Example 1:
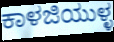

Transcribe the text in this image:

ಕಾಳಜಿಯುಳ್ಳ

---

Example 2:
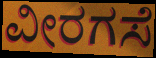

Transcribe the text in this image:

ವೀರಗಸೆ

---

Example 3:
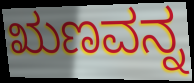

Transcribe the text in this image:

ಋಣವನ್ನ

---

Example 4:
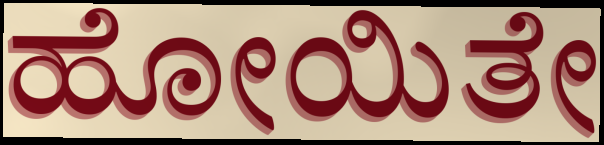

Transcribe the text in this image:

ಹೋಯಿತೇ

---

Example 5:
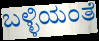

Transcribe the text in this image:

ಬಳ್ಳಿಯಂತೆ